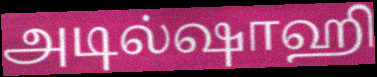
அடில்ஷாஹி